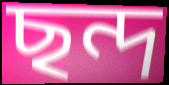
ছন্দ